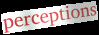
perceptions